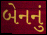
બેનનું